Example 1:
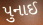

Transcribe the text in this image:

પુનાઈ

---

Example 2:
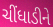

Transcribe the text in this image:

ચીંધાડીને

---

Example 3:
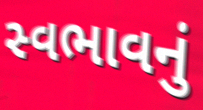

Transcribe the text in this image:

સ્વભાવનું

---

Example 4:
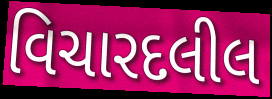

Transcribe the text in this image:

વિચારદલીલ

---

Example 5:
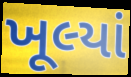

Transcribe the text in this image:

ખૂલ્યાં